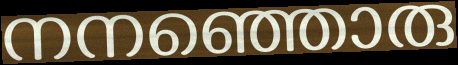
നനഞ്ഞൊരു